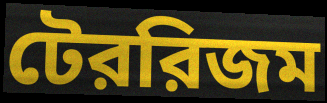
টেররিজম